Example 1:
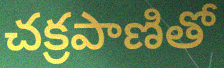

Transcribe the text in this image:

చక్రపాణితో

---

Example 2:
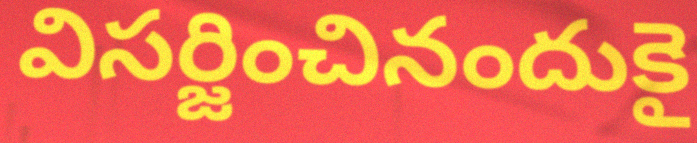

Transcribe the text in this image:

విసర్జించినందుకై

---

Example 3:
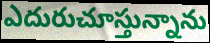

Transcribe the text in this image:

ఎదురుచూస్తున్నాను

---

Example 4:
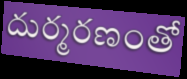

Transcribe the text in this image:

దుర్మరణంతో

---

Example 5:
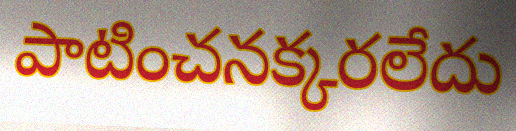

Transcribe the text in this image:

పాటించనక్కరలేదు